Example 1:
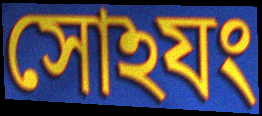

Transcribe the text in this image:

সোঽযং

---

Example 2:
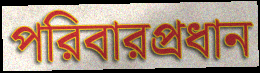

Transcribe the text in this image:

পরিবারপ্রধান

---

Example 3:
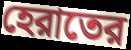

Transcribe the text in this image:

হেরাতের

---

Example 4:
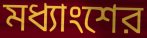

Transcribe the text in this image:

মধ্যাংশের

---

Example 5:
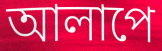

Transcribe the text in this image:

আলাপে